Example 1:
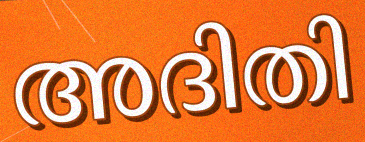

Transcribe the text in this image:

അദിതി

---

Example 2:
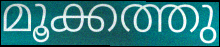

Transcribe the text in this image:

മൂക്കത്തു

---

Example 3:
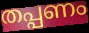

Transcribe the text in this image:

തപ്പണം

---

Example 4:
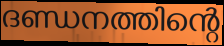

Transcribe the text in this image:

ദണ്ഡനത്തിന്റെ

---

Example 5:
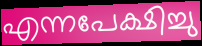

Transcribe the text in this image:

എന്നപേക്ഷിച്ചു